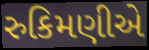
રુકિમણીએ